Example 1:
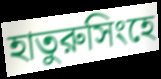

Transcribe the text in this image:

হাতুরুসিংহে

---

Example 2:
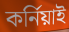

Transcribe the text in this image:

কর্নিয়াই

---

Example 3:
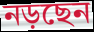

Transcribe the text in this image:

নড়ছেন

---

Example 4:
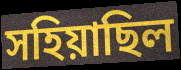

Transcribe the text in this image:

সহিয়াছিল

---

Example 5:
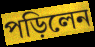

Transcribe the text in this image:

পড়িলেন